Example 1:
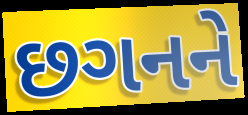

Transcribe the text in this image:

છગનને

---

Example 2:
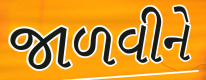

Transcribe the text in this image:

જાળવીને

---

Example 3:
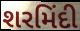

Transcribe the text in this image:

શરમિંદી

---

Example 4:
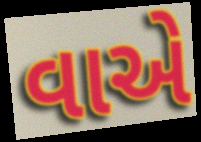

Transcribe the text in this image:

વાએ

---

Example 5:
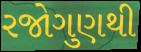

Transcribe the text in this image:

રજોગુણથી